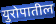
युरोपातील